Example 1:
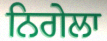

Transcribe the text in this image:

ਨਿਗੇਲਾ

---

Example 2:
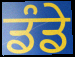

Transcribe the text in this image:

ਡੰਡੇ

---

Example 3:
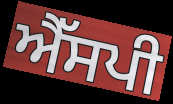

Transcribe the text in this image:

ਐੱਸਪੀ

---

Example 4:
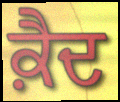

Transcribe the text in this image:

ਕ਼ੈਦ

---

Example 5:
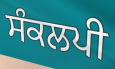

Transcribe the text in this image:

ਸੰਕਲਪੀ